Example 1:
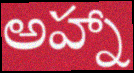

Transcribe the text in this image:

అహ్నా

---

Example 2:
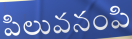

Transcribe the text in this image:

పిలువనంపి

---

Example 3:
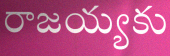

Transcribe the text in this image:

రాజయ్యకు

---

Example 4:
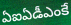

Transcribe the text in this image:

ఏఐఏడీఎంకే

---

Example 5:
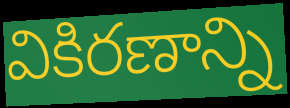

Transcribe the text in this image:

వికిరణాన్ని